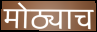
मोठ्याच